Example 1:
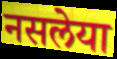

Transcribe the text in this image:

नसलेया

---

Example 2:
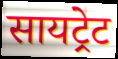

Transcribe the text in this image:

सायट्रेट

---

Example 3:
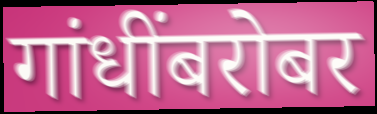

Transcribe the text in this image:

गांधींबरोबर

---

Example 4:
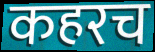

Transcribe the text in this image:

कहरच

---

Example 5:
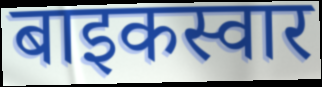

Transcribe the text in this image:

बाइकस्वार